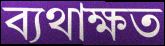
ব্যথাক্ষত